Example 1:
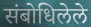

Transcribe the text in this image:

संबोधिलेले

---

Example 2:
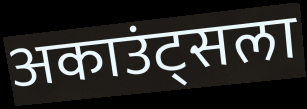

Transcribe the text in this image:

अकाउंट्सला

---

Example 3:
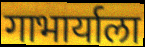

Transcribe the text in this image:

गाभार्याला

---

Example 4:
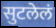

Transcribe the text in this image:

सुटलेलं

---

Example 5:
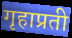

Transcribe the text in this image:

गृहाप्रती